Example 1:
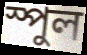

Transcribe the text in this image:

স্পুল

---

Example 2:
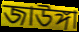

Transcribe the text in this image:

জাউঙ্গা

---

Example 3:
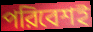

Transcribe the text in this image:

পরিবেশই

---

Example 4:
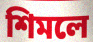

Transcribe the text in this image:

শিমলে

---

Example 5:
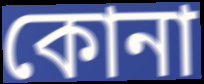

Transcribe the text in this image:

কোনা